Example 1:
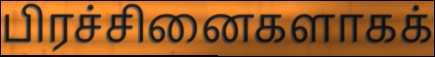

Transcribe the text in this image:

பிரச்சினைகளாகக்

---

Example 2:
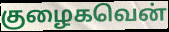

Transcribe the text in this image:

குழைகவென்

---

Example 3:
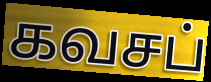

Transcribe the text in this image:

கவசப்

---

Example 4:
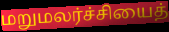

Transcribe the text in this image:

மறுமலர்ச்சியைத்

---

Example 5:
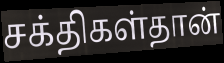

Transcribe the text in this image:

சக்திகள்தான்